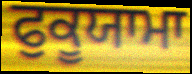
ਫੁਕੂਯਾਮਾ